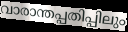
വാരാന്തപ്പതിപ്പിലും